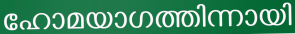
ഹോമയാഗത്തിന്നായി